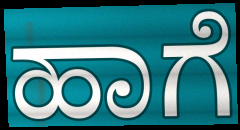
ಹಾಗೆ